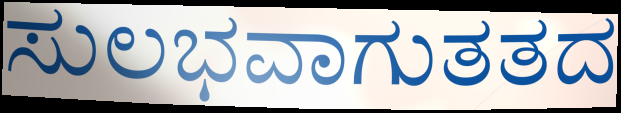
ಸುಲಭವಾಗುತತದ